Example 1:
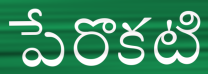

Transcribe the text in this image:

పేరొకటి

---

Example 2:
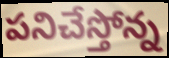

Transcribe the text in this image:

పనిచేస్తోన్న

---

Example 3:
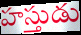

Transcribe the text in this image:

హస్తుడు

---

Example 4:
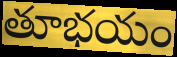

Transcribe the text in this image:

తూభయం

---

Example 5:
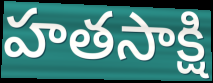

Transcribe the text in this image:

హతసాక్షి